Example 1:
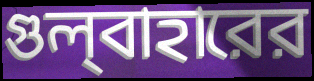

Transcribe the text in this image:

গুল্‌বাহারের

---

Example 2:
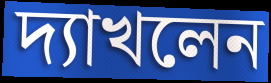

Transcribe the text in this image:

দ্যাখলেন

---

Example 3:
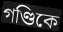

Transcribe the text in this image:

গণ্ডিকে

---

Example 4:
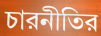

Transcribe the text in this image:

চারনীতির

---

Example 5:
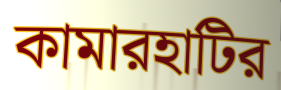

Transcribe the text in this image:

কামারহাটির